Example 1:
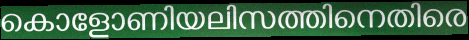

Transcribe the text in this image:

കൊളോണിയലിസത്തിനെതിരെ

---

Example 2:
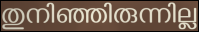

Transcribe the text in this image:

തുനിഞ്ഞിരുന്നില്ല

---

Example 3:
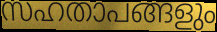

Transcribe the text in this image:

സഹതാപങ്ങളും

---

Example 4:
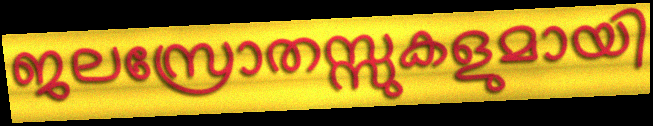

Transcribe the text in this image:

ജലസ്രോതസ്സുകളുമായി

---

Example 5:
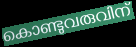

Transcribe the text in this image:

കൊണ്ടുവരുവിന്